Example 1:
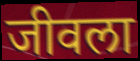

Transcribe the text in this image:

जीवला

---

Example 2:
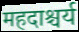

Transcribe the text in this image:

महदाश्चर्य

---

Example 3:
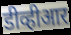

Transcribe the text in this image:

डीव्हीआर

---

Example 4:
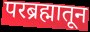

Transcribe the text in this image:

परब्रह्मातून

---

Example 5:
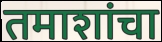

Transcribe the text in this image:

तमाशांचा